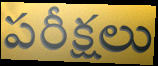
పరీక్షలు